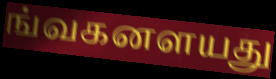
ங்வகனளயது